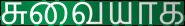
சுவையாக